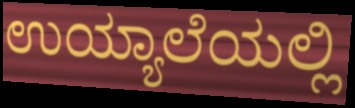
ಉಯ್ಯಾಲೆಯಲ್ಲಿ